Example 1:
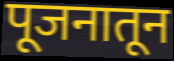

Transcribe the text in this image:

पूजनातून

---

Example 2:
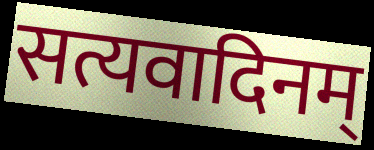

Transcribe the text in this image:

सत्यवादिनम्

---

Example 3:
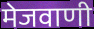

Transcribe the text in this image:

मेजवाणी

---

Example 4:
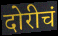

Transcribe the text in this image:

दोरीचं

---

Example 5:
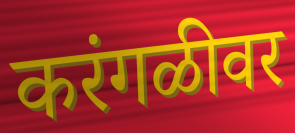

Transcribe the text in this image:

करंगळीवर